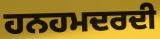
ਹਨਹਮਦਰਦੀ